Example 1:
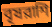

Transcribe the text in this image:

বৃষরাশি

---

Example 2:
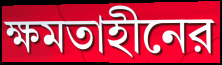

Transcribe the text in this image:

ক্ষমতাহীনের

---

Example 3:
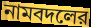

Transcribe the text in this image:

নামবদলের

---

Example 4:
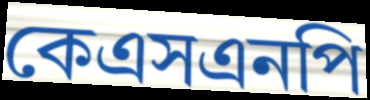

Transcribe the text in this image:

কেএসএনপি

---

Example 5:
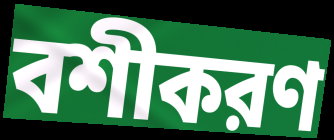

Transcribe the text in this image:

বশীকরণ